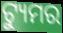
ଟ୍ୟୁମର